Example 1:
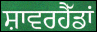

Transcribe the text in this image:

ਸ਼ਾਵਰਹੈੱਡਾਂ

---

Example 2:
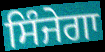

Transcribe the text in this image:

ਸਿੰਜੇਗਾ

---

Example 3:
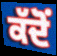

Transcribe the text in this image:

ਕੱਦੋਂ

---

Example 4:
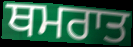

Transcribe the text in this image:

ਥਮਰਾਤ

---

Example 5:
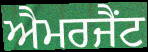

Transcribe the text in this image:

ਐਮਰਜੈਂਟ